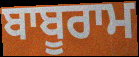
ਬਾਬੂਰਾਮ